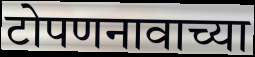
टोपणनावाच्या